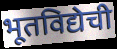
भूतविद्येची